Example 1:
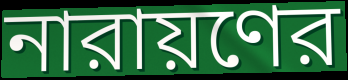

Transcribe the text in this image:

নারায়ণের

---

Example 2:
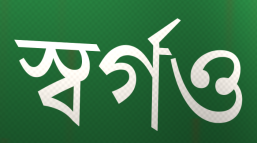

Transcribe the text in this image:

স্বর্গও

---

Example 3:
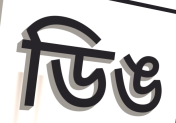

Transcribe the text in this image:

ডিঙ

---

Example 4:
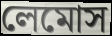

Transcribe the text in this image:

লেমোস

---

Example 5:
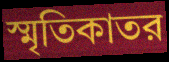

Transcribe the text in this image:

স্মৃতিকাতর